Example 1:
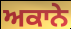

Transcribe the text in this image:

ਅਕਾਨੇ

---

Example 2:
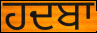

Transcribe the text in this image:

ਹਦਬਾ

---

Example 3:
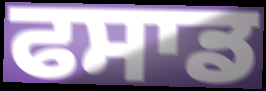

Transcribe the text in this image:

ਫਸਾਡ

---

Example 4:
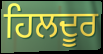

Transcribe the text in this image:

ਹਿਲਦੂਰ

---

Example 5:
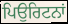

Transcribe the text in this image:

ਪਿਉਰਿਟਨਾਂ